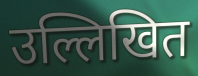
उल्लिखित